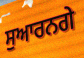
ਸੁਆਰਨਗੇ